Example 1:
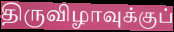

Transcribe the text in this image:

திருவிழாவுக்குப்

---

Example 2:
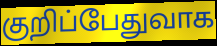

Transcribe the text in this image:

குறிப்பேதுவாக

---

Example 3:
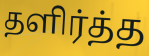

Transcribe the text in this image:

தளிர்த்த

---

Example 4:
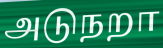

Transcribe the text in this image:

அடுநறா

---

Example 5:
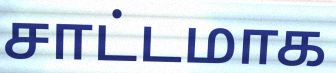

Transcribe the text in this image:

சாட்டமாக